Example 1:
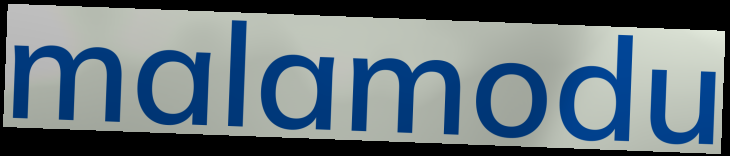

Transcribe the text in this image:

malamodu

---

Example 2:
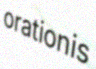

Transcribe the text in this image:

orationis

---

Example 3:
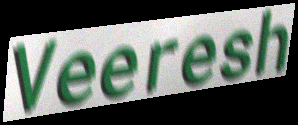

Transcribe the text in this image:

Veeresh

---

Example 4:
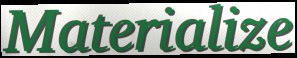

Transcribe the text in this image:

Materialize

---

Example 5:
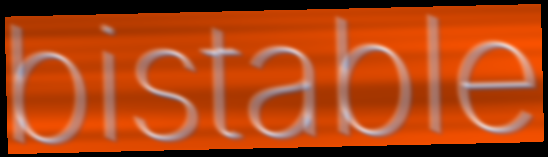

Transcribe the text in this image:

bistable